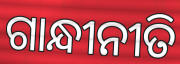
ଗାନ୍ଧୀନୀତି